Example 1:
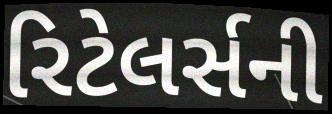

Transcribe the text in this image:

રિટેલર્સની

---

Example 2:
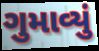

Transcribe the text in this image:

ગુમાવ્યું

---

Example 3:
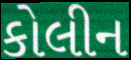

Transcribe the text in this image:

કોલીન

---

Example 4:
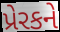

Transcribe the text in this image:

પ્રેરકને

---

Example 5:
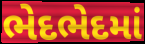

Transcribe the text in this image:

ભેદભેદમાં